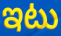
ఇటు